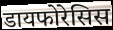
डायफोरेसिस